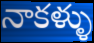
నాకళ్ళు